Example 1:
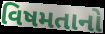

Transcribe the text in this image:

વિષમતાનો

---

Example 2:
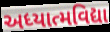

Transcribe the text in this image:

અધ્યાત્મવિદ્યા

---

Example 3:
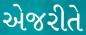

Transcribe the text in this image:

એજરીતે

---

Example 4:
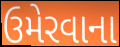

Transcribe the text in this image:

ઉમેરવાના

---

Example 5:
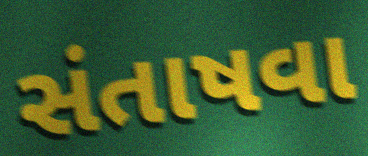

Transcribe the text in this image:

સંતાષવા